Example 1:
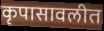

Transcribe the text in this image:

कृपासावलीत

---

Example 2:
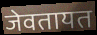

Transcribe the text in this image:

जेवतायत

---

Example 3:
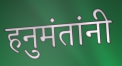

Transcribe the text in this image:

हनुमंतांनी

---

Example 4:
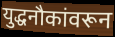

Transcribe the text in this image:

युद्धनौकांवरून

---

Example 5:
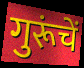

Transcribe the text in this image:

गुरूंचें